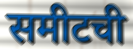
समीटची